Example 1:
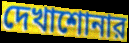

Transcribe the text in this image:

দেখাশোনার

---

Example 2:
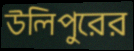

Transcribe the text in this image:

উলিপুরের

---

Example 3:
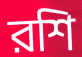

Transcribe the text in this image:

রশি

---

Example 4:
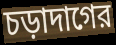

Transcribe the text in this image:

চড়াদাগের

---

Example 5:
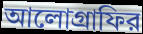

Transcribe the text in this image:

আলোগ্রাফির